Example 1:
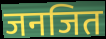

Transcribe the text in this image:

जनजित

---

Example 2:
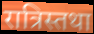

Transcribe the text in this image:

रात्रिस्तथा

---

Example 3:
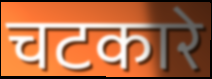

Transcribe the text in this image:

चटकारे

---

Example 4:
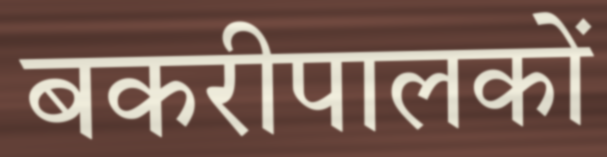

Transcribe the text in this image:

बकरीपालकों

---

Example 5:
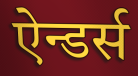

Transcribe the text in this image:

ऐन्डर्स